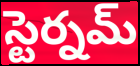
స్టెర్నమ్